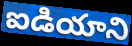
ఐడియాని